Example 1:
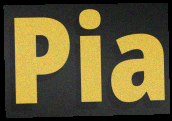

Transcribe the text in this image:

Pia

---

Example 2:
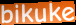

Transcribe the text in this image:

bikuke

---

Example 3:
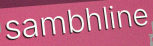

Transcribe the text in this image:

sambhline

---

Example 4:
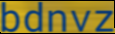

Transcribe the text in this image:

bdnvz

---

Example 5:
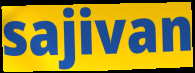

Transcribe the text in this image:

sajivan